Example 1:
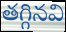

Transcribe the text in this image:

తగ్గినవి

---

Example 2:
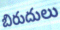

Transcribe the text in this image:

బిరుదులు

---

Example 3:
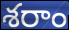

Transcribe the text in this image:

శరాం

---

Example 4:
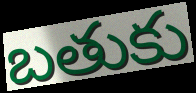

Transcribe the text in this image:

బతుకు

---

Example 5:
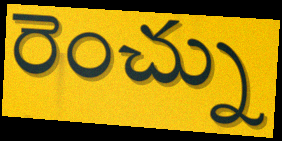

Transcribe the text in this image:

రెంచ్ను